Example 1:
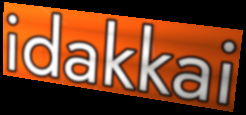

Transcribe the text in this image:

idakkai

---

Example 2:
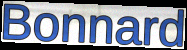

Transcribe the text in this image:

Bonnard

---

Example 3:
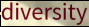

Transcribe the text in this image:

diversity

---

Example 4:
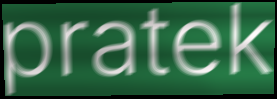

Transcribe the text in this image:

pratek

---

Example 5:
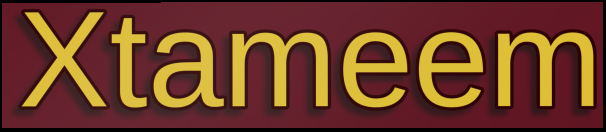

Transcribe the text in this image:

Xtameem